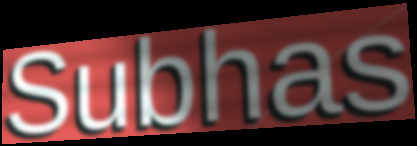
Subhas